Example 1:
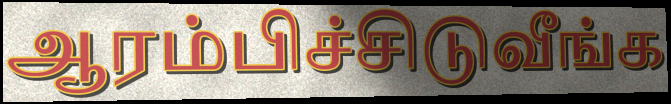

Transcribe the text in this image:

ஆரம்பிச்சிடுவீங்க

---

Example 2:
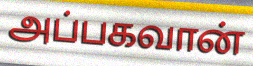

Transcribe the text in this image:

அப்பகவான்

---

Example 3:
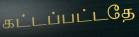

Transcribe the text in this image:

கட்டப்பட்டதே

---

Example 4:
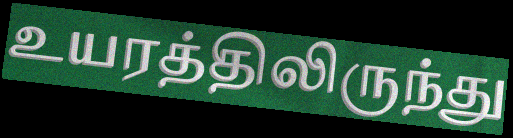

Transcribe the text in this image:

உயரத்திலிருந்து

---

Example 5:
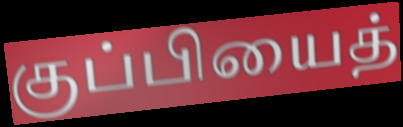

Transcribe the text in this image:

குப்பியைத்